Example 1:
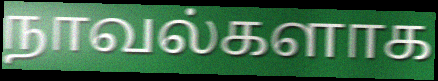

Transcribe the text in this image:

நாவல்களாக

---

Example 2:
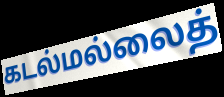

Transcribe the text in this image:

கடல்மல்லைத்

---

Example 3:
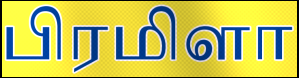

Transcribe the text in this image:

பிரமிளா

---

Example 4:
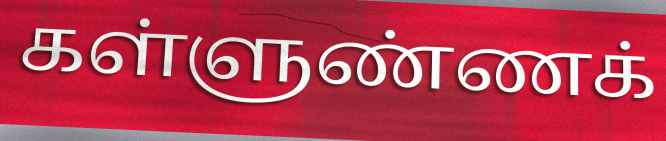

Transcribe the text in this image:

கள்ளுண்ணக்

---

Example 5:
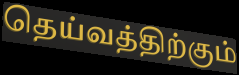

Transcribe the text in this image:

தெய்வத்திற்கும்